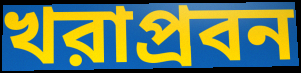
খরাপ্রবন